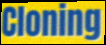
Cloning